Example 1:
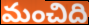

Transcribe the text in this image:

మంచిది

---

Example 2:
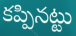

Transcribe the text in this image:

కప్పినట్టు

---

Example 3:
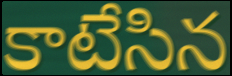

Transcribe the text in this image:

కాటేసిన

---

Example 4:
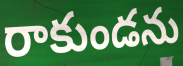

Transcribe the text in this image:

రాకుండను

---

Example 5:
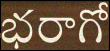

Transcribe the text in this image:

భరాగో